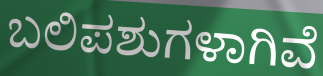
ಬಲಿಪಶುಗಳಾಗಿವೆ